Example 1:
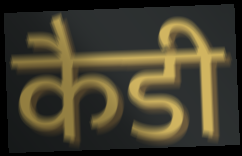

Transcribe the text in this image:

कैडी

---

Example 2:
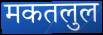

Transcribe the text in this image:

मकतलुल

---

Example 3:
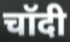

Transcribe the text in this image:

चॉदी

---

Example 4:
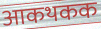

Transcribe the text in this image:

आकथकक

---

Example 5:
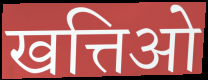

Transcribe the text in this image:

खत्तिओ